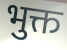
भुक्त